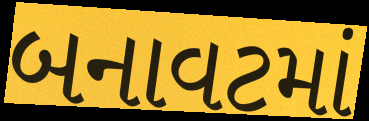
બનાવટમાં